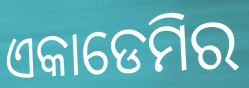
ଏକାଡେମିର